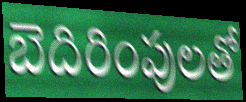
బెదిరింపులతో